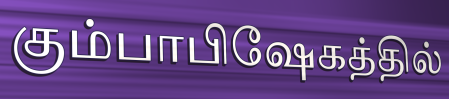
கும்பாபிஷேகத்தில்